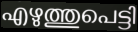
എഴുത്തുപെട്ടി